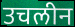
उचलीन